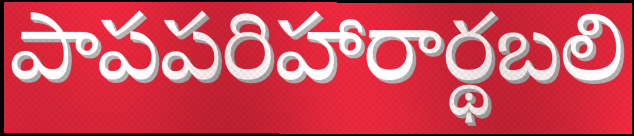
పాపపరిహారార్థబలి